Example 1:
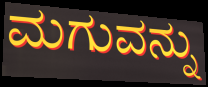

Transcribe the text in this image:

ಮಗುವನ್ನು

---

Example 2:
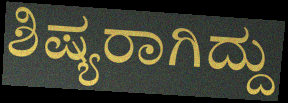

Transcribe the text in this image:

ಶಿಷ್ಯರಾಗಿದ್ದು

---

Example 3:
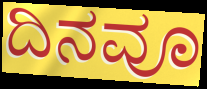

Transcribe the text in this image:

ದಿನವೂ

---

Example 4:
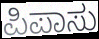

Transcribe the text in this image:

ಪಿಪಾಸು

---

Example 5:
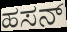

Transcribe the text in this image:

ಹಸನ್